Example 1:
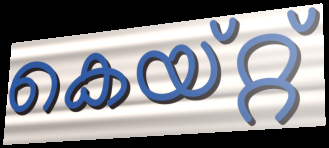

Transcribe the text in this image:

കെയ്റ്റ്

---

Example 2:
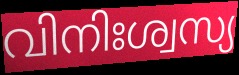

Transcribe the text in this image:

വിനിഃശ്വസ്യ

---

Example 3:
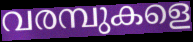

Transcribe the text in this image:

വരമ്പുകളെ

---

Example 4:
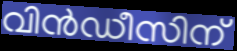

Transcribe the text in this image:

വിൻഡീസിന്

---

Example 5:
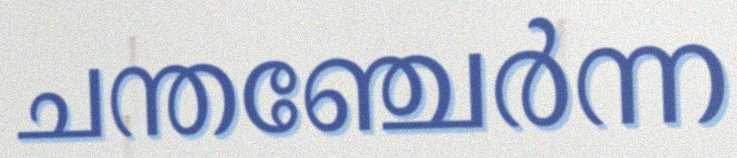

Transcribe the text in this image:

ചന്തഞ്ചേർന്ന